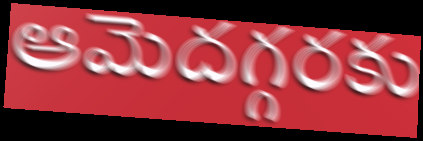
ఆమెదగ్గరకు